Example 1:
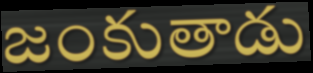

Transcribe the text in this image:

జంకుతాడు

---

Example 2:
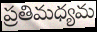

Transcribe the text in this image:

ప్రతిమధ్యమ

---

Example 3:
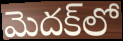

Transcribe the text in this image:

మెదక్‌లో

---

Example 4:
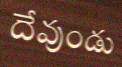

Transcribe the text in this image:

దేవుండు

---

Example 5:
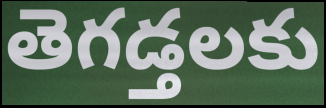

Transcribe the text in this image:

తెగడ్తలకు